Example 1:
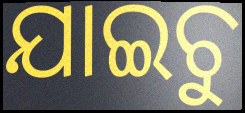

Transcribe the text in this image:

ଯାଇଚୁ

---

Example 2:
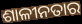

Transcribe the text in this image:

ଶାଳୀନତାର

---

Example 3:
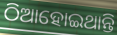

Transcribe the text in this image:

ଠିଆହୋଇଥାନ୍ତି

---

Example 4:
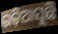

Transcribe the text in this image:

ଉଡ଼ିଆସୁଛି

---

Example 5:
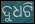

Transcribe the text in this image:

ଦୁଧଟି